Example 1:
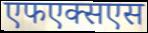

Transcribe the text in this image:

एफएक्सएस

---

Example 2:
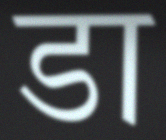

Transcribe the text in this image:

डा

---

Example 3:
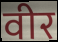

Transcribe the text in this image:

वीर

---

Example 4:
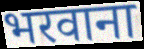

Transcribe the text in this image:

भरवाना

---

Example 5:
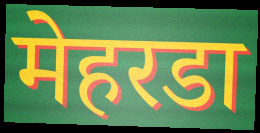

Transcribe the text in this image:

मेहरडा